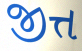
જીત્ત